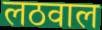
लठवाल